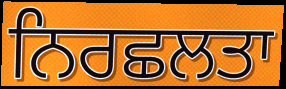
ਨਿਰਛਲਤਾ